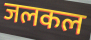
जलकल